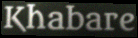
Khabare